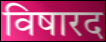
विषारद